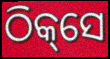
ଠିକ୍‌ସେ